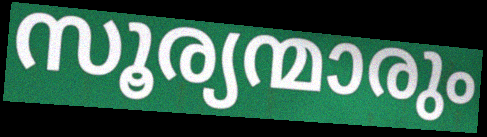
സൂര്യന്മാരും